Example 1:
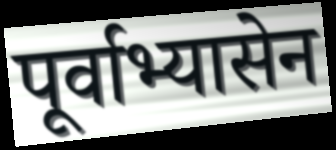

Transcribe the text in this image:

पूर्वाभ्यासेन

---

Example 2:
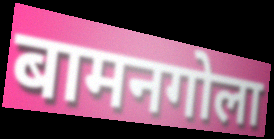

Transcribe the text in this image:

बामनगोला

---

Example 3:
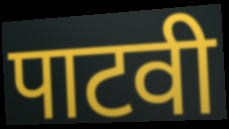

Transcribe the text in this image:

पाटवी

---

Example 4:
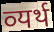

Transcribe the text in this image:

व्‍यर्थ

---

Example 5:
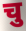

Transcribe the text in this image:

चु